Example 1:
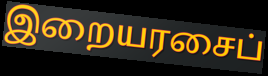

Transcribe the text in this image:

இறையரசைப்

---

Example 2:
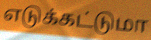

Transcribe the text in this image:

எடுக்கட்டுமா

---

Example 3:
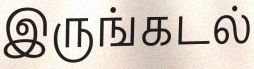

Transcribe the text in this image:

இருங்கடல்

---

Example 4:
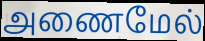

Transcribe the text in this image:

அணைமேல்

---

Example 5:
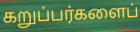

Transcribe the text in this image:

கறுப்பர்களைப்